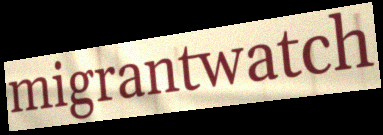
migrantwatch